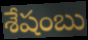
శేషంబు